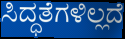
ಸಿದ್ಧತೆಗಳಿಲ್ಲದೆ